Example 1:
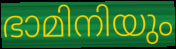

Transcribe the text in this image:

ഭാമിനിയും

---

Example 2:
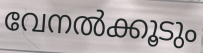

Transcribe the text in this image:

വേനൽക്കൂടും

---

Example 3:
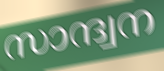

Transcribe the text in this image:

സാന്ദ്വന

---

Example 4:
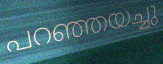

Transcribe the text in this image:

പറഞ്ഞയച്ചു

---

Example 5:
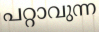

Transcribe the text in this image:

പറ്റാവുന്ന